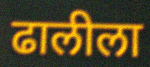
ढालीला